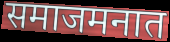
समाजमनात